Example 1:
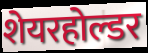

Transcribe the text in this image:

शेयरहोल्डर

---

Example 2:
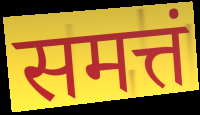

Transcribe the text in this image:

समत्तं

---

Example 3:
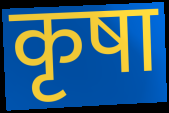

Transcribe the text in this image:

कृषा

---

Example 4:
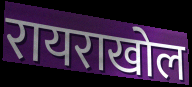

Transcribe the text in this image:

रायराखोल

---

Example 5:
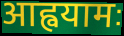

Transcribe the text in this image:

आह्वयामः